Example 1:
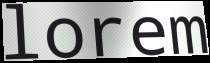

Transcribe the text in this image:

lorem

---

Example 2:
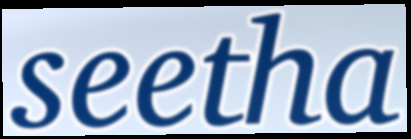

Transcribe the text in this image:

seetha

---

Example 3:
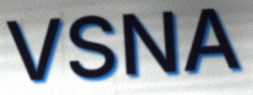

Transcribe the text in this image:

VSNA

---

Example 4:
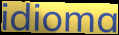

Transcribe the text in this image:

idioma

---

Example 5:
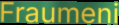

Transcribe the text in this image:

Fraumeni